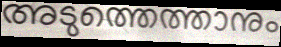
അടുത്തെത്താനും